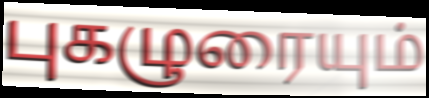
புகழுரையும்